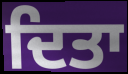
ਦਿਤਾ